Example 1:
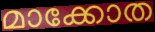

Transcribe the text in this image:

മാക്കോത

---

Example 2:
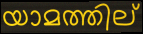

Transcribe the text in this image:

യാമത്തില്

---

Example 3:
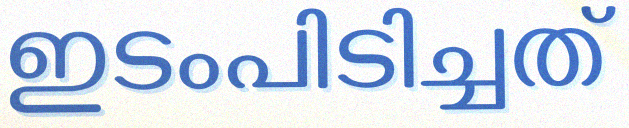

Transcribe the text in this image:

ഇടംപിടിച്ചത്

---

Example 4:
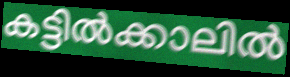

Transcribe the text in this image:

കട്ടിൽക്കാലിൽ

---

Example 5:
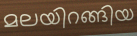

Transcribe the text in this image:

മലയിറങ്ങിയ